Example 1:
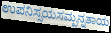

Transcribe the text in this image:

ಉಪನಿಸ್ಸಯಸಮ್ಪನ್ನತಾಯ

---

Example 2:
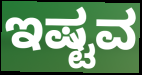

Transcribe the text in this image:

ಇಷ್ಟವ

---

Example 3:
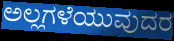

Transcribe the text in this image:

ಅಲ್ಲಗಳೆಯುವುದರ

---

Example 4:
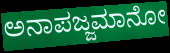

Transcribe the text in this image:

ಅನಾಪಜ್ಜಮಾನೋ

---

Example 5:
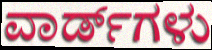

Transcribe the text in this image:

ವಾರ್ಡ್‌ಗಳು